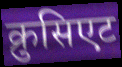
क्रुसिएट